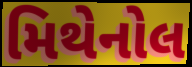
મિથેનોલ